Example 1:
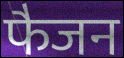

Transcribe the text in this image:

फैजन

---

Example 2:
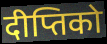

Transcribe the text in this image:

दीप्तिको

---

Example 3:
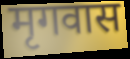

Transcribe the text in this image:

मृगवास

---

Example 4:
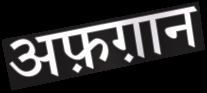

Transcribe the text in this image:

अफ़ग़ान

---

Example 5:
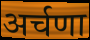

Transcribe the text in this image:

अर्चणा